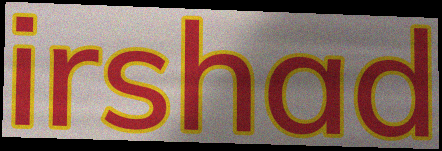
irshad